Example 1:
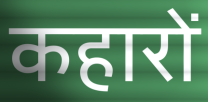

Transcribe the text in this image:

कहारों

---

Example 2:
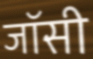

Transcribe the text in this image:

जॉसी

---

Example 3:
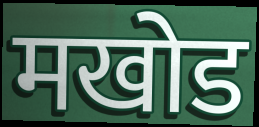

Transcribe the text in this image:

मखोड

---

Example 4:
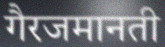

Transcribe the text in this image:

गैरजमानती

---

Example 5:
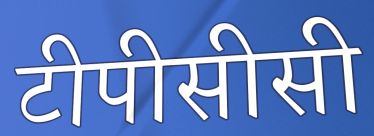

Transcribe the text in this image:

टीपीसीसी